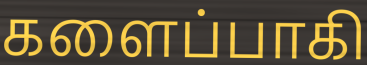
களைப்பாகி